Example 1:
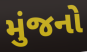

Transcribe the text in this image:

મુંજનો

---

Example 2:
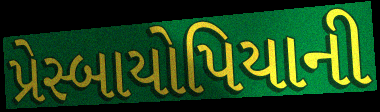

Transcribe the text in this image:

પ્રેસ્બાયોપિયાની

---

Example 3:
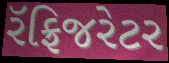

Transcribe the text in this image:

રૅફ્રિજરેટર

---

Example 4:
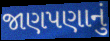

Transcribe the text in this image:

જાણપણાનું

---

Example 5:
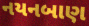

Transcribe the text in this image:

નયનબાણ